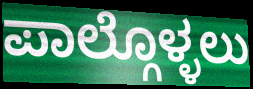
ಪಾಲ್ಗೊಳ್ಳಲು